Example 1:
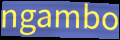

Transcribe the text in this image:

ngambo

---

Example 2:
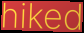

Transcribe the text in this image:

hiked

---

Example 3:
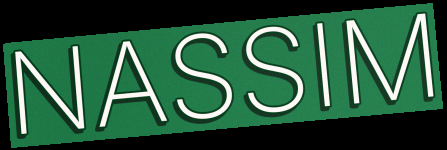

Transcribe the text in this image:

NASSIM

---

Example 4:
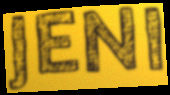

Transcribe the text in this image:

JENI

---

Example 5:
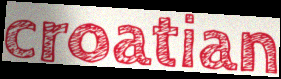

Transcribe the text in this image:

croatian